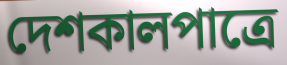
দেশকালপাত্রে